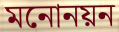
মনোনয়ন